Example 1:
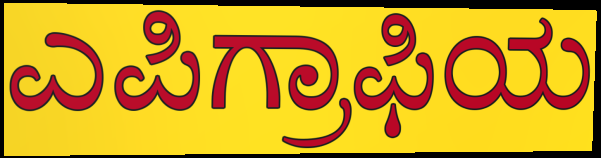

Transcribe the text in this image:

ಎಪಿಗ್ರಾಫಿಯ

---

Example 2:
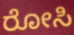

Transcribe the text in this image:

ರೋಸಿ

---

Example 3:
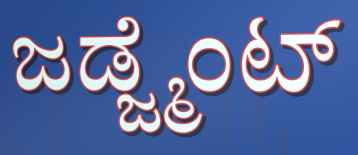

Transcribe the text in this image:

ಜಡ್ಜ್ಮೆಂಟ್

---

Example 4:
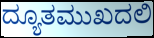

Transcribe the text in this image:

ದ್ಯೂತಮುಖದಲಿ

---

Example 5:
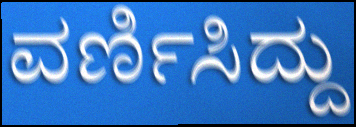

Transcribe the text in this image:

ವರ್ಣಿಸಿದ್ದು